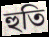
হুতি